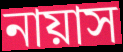
নায়াস